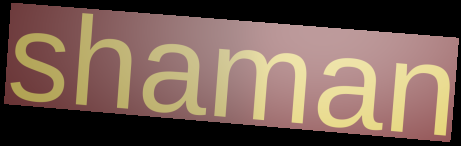
shaman